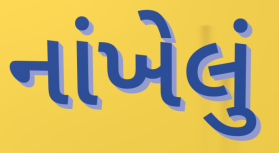
નાંખેલું